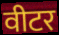
वीटर